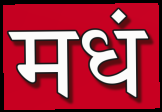
मधं